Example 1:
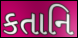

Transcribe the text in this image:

કતાનિ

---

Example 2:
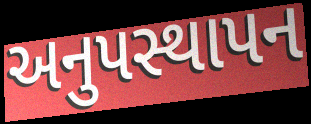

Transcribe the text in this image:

અનુપસ્થાપન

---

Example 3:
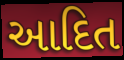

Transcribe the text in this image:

આદિત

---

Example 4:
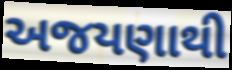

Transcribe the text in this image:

અજયણાથી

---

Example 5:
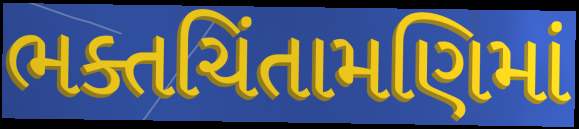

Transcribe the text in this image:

ભક્તચિંતામણિમાં